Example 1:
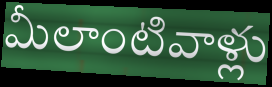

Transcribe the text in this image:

మీలాంటివాళ్లు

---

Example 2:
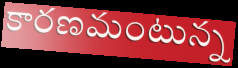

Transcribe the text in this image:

కారణమంటున్న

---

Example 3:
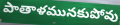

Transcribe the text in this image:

పాతాళమునకుపోవు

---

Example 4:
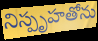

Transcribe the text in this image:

నిస్పృహతోను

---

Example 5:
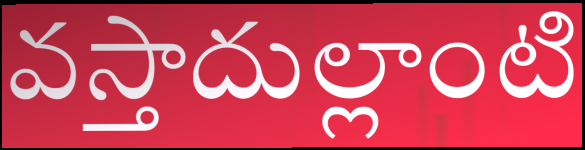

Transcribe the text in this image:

వస్తాదుల్లాంటి